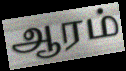
ஆரம்